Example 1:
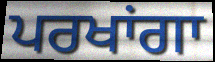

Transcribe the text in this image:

ਪਰਖਾਂਗਾ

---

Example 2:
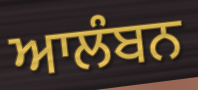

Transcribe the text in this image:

ਆਲੰਬਨ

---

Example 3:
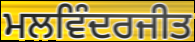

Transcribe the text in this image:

ਮਲਵਿੰਦਰਜੀਤ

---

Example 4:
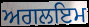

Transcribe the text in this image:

ਅਗਲਇਮ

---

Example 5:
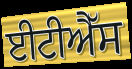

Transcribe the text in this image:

ਈਟੀਐੱਸ